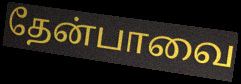
தேன்பாவை